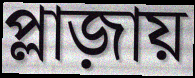
প্লাজ়ায়